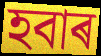
হবাৰ